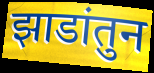
झाडांतुन